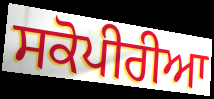
ਸਕੋਪੀਰੀਆ